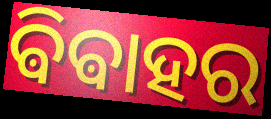
ଵିଵାହର